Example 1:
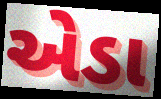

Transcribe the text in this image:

એડા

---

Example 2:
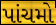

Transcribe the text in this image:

પાંચમો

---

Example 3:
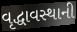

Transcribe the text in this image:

વૃદ્ધાવસ્થાની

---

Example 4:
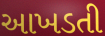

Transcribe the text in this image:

આખડતી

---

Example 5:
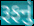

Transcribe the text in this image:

રૂફનું